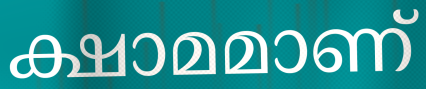
ക്ഷാമമാണ്